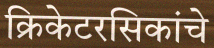
क्रिकेटरसिकांचे